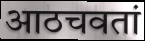
आठचवतां